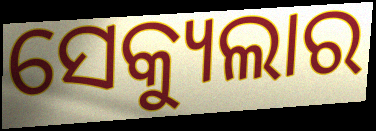
ସେକ୍ୟୁଲାର